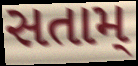
સતામ્